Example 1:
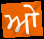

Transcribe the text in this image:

ਆੇ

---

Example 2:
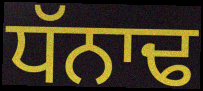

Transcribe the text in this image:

ਧੱਨਾਢ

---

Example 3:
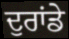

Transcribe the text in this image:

ਦੁਰਾਂਡੇ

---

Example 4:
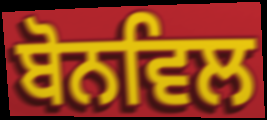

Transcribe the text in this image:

ਬੋਨਵਿਲ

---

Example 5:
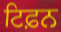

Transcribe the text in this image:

ਟਿਫ਼ਨ